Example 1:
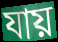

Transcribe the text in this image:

যায়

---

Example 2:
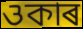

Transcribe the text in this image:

ওকাৰ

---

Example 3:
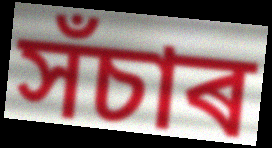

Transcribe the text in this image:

সঁচাৰ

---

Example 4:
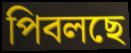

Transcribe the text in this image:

পিবলছে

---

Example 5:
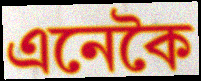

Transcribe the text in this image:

এনেকৈ